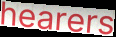
hearers